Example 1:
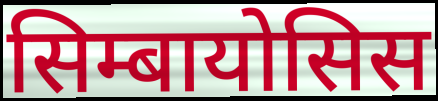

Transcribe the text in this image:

सिम्बायोसिस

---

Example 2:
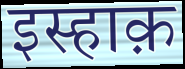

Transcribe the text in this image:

इस्हाक़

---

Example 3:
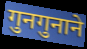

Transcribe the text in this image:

गुनगुनाने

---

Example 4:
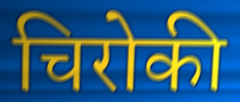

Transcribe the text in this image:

चिरोकी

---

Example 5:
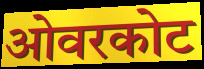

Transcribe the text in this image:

ओवरकोट